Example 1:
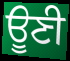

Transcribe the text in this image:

ਊਣੀ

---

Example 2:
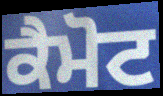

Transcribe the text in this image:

ਕੈਮੋਟ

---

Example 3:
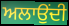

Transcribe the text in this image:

ਅਲਾਉਂਦੀ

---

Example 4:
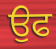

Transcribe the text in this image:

ਉਫ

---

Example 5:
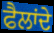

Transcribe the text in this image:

ਫੈਲਾਂਦੇ